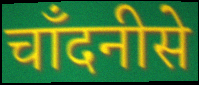
चाँदनीसे